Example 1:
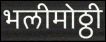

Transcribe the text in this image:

भलीमोठ्ठी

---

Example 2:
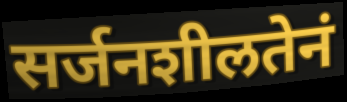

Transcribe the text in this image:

सर्जनशीलतेनं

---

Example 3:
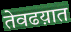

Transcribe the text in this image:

तेवढय़ात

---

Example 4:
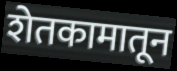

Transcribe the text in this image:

शेतकामातून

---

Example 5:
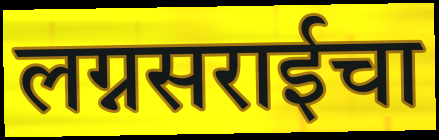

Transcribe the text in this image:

लग्नसराईचा